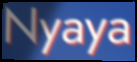
Nyaya